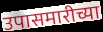
उपासमारीच्या